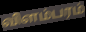
விளம்பரம்